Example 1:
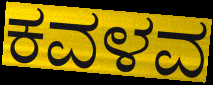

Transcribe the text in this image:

ಕವಳವ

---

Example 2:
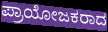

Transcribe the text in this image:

ಪ್ರಾಯೋಜಕರಾದ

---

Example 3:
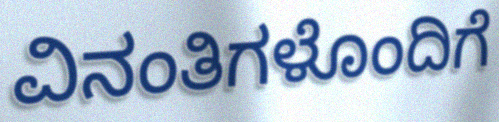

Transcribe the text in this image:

ವಿನಂತಿಗಳೊಂದಿಗೆ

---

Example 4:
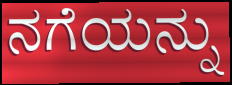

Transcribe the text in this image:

ನಗೆಯನ್ನು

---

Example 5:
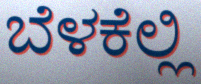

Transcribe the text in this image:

ಬೆಳಕೆಲ್ಲಿ